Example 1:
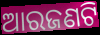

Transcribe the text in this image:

ଆରଜଣଟି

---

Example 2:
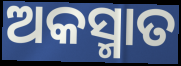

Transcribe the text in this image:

ଅକସ୍ମାତ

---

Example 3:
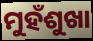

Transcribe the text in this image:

ମୁହଁଶୁଖା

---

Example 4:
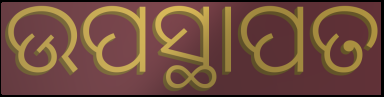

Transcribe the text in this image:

ଉପସ୍ଥାପତ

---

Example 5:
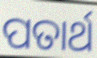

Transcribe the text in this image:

ପତାର୍ଥ